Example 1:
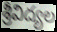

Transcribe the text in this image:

శ్రీవిద్యల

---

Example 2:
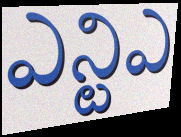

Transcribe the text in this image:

ఎన్టిఎ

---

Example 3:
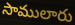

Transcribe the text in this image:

సాములారు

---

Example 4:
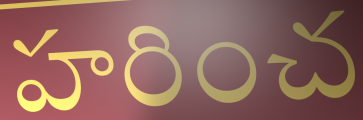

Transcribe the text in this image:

హరించ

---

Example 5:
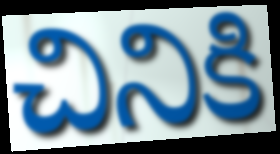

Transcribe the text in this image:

చినికి